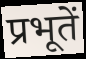
प्रभूतें